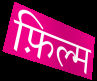
फ़िल्म